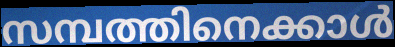
സമ്പത്തിനെക്കാൾ